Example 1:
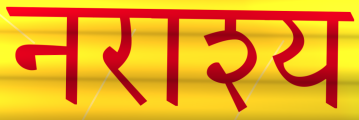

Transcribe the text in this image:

नराश्य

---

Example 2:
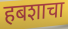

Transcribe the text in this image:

हबशाचा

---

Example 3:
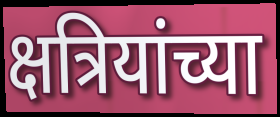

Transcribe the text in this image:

क्षत्रियांच्या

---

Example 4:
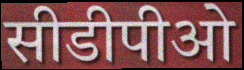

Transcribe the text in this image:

सीडीपीओ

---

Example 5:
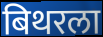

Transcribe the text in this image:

बिथरला